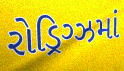
રોડ્રિગ્ઝમાં